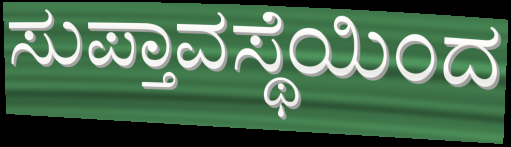
ಸುಪ್ತಾವಸ್ಥೆಯಿಂದ